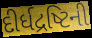
દીર્ધદ્રષ્ટિની